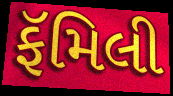
ફૅમિલી